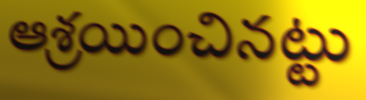
ఆశ్రయించినట్టు